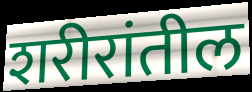
शरीरांतील